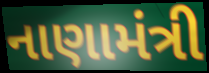
નાણામંત્રી